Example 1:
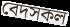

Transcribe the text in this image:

বেদসকল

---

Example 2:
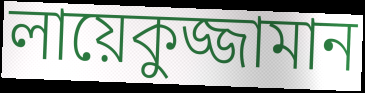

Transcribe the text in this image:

লায়েকুজ্জামান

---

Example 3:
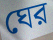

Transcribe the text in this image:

ঘের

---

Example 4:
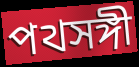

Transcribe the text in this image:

পথসঙ্গী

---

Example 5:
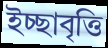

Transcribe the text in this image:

ইচ্ছাবৃত্তি